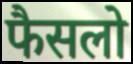
फैसलो